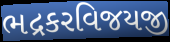
ભદ્રકરવિજયજી